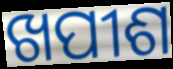
ଖପୀଶ